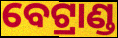
ବେଟ୍ରାଣ୍ଡ